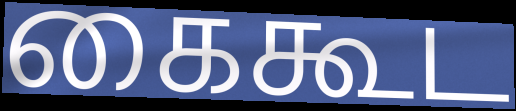
கைகூட